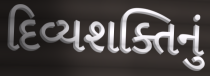
દિવ્યશક્તિનું